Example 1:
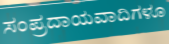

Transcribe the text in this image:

ಸಂಪ್ರದಾಯವಾದಿಗಳೂ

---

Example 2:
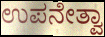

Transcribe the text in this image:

ಉಪನೇತ್ವಾ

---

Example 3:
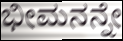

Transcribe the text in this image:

ಭೀಮನನ್ನೇ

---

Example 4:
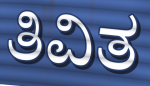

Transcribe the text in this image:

ತಿವಿತ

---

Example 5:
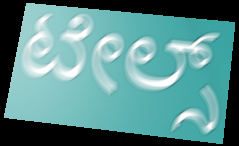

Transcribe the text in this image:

ಟೇಲ್ಸ್